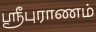
ஸ்ரீபுராணம்